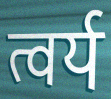
त्वर्य